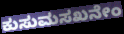
ಕುಸುಮಸಖನೇಂ